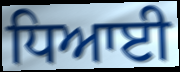
ਧਿਆਈ